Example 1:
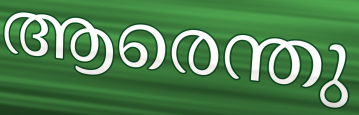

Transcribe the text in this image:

ആരെന്തു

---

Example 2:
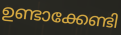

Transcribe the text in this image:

ഉണ്ടാക്കേണ്ടി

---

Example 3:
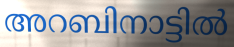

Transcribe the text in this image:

അറബിനാട്ടിൽ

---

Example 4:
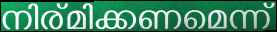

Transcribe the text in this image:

നിര്മിക്കണമെന്ന്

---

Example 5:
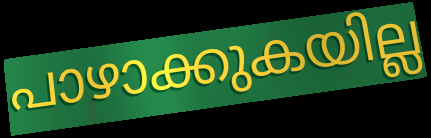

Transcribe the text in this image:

പാഴാക്കുകയില്ല